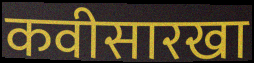
कवीसारखा